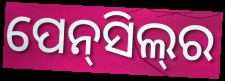
ପେନ୍‍ସିଲ୍‍ର